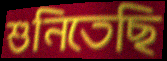
শুনিতেছি